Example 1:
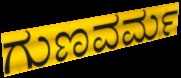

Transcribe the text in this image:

ಗುಣವರ್ಮ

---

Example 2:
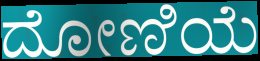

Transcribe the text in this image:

ದೋಣಿಯೆ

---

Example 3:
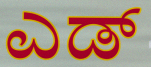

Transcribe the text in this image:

ಎಡ್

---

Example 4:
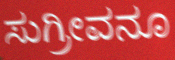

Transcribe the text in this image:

ಸುಗ್ರೀವನೂ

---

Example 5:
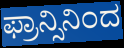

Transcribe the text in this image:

ಫ್ರಾನ್ಸಿನಿಂದ